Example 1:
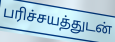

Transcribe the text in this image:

பரிச்சயத்துடன்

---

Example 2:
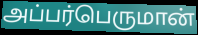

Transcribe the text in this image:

அப்பர்பெருமான்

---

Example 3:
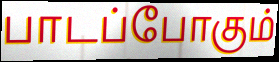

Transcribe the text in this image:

பாடப்போகும்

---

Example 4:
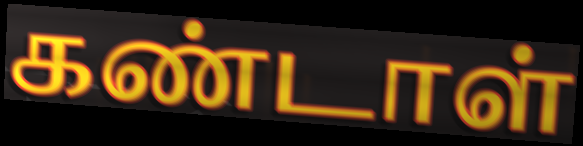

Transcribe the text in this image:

கண்டாள்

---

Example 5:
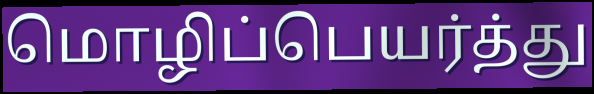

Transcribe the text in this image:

மொழிப்பெயர்த்து